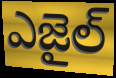
ఎజైల్